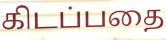
கிடப்பதை